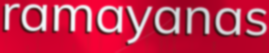
ramayanas